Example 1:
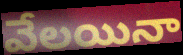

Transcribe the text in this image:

వేలయినా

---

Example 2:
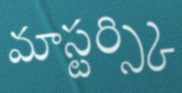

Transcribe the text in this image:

మాస్టర్స్కి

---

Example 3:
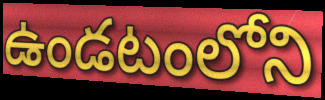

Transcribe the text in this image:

ఉండటంలోని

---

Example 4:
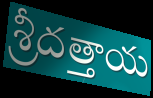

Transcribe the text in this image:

శ్రీదత్తాయ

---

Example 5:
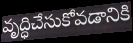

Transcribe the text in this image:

వృద్ధిచేసుకోవడానికి